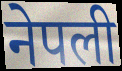
नेपली